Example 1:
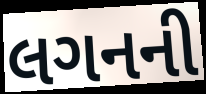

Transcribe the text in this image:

લગનની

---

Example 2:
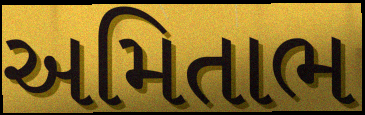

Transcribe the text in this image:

અમિતાભ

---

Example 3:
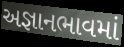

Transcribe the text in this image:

અજ્ઞાનભાવમાં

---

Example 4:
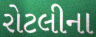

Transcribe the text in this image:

રોટલીના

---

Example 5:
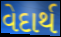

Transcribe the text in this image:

વેદાર્થ